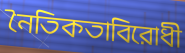
নৈতিকতাবিরোধী